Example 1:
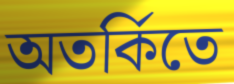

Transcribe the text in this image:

অতর্কিতে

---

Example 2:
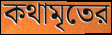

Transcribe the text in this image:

কথামৃতের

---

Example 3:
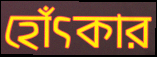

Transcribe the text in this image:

হোঁৎকার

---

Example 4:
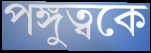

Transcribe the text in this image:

পঙ্গুত্বকে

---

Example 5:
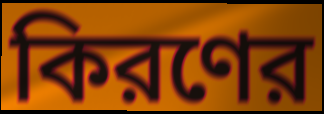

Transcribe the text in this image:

কিরণের